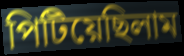
পিটিয়েছিলাম